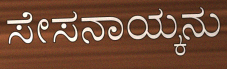
ಸೇಸನಾಯ್ಕನು